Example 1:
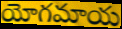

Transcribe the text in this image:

యోగమాయ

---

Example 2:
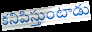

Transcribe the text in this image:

కనిపిస్తుంటాడు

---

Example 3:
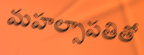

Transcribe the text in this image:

మహల్సాపతితో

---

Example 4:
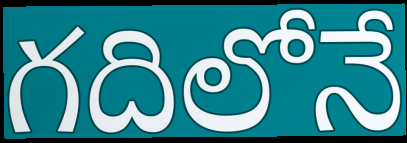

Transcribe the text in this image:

గదిలోనే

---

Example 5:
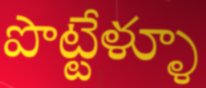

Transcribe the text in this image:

పొట్టేళ్ళూ